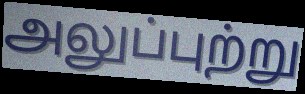
அலுப்புற்று